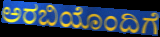
ಅರಬಿಯೊಂದಿಗೆ